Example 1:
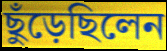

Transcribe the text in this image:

ছুঁড়েছিলেন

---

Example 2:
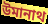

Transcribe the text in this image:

উমানাথ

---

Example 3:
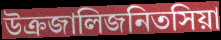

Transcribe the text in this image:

উক্রজালিজনিতসিয়া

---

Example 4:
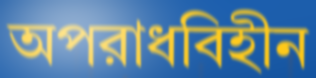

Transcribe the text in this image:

অপরাধবিহীন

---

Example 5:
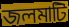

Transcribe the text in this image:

জলমাটি